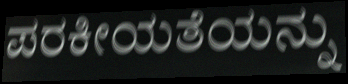
ಪರಕೀಯತೆಯನ್ನು